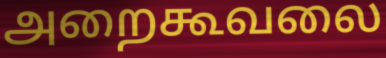
அறைகூவலை